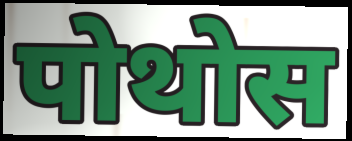
पोथोस